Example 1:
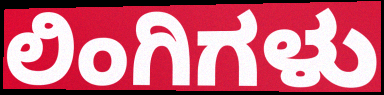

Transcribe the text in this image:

ಲಿಂಗಿಗಳು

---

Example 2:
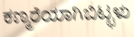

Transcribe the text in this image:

ಕಣ್ಮರೆಯಾಗಿಬಿಟ್ಟಳು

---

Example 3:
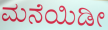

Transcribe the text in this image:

ಮನೆಯಿಡೀ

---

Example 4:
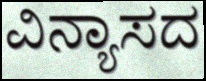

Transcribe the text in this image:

ವಿನ್ಯಾಸದ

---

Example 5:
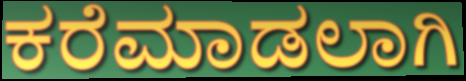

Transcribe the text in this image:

ಕರೆಮಾಡಲಾಗಿ